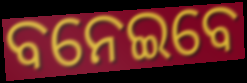
ବନେଇବେ